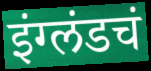
इंग्लंडचं